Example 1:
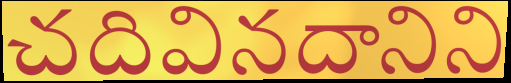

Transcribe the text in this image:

చదివినదానిని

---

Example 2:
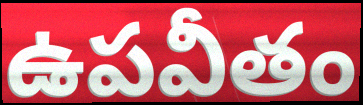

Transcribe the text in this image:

ఉపవీతం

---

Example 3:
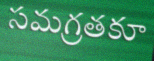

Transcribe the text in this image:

సమగ్రతకూ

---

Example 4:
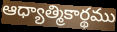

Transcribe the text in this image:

ఆధ్యాత్మికార్థము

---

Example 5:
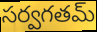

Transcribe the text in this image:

సర్వగతమ్